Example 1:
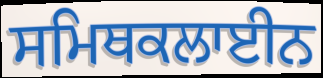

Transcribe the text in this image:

ਸਮਿਥਕਲਾਈਨ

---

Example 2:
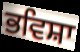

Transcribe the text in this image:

ਭਵਿਸ਼ਾ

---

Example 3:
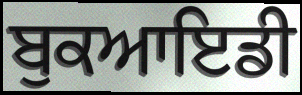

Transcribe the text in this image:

ਬੁਕਆਇਡੀ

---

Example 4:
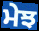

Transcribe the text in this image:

ਮੇਝ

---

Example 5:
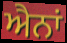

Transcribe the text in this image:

ਐਨਾਂ